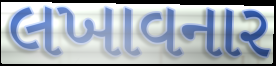
લખાવનાર